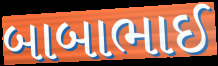
બાબાભાઈ